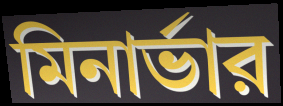
মিনার্ভার